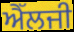
ਐੱਲਜੀ